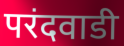
परंदवाडी